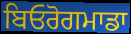
ਬਿਓਰੋਗਮਾਡਾ